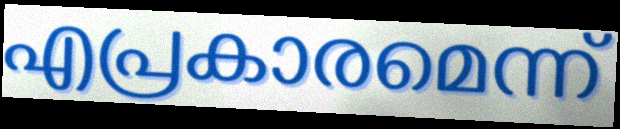
എപ്രകാരമെന്ന്